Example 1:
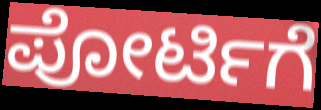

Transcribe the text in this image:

ಪೋರ್ಟಿಗೆ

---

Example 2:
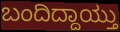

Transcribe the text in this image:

ಬಂದಿದ್ದಾಯ್ತು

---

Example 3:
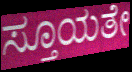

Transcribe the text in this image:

ಸ್ತೂಯತೇ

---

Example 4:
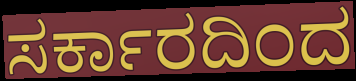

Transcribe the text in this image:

ಸರ್ಕಾರದಿಂದ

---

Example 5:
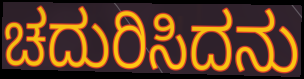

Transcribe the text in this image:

ಚದುರಿಸಿದನು